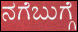
ನಗೆಬುಗ್ಗೆ